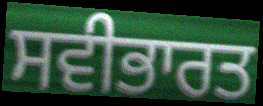
ਸਵੀਭਾਰਤ